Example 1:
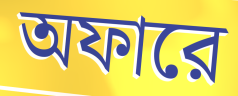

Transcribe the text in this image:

অফারে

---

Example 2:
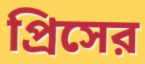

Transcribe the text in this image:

প্রিসের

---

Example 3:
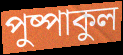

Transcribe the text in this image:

পুষ্পাকুল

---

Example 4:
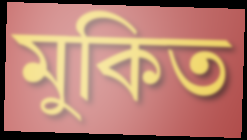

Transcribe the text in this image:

মুকিত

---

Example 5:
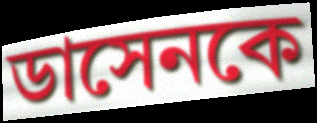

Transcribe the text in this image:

ডাসেনকে